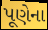
પૂણેના